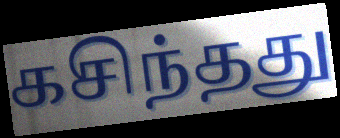
கசிந்தது